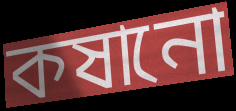
কষানো